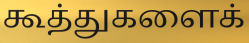
கூத்துகளைக்